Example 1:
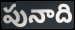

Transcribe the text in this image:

పునాది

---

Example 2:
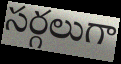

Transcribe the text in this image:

సర్గలుగా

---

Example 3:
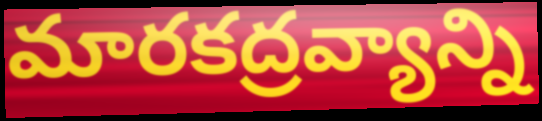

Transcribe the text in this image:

మారకద్రవ్యాన్ని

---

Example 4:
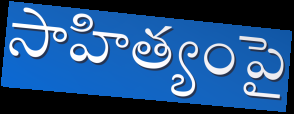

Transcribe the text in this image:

సాహిత్యంపై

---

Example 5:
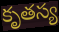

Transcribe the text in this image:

కృతస్య